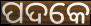
ପଦକେ